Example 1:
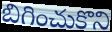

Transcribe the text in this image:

బిగించుకొని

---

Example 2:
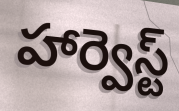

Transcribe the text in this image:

హార్వెస్ట్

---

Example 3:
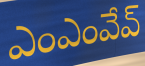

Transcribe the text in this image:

ఎంఎంవేవ్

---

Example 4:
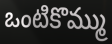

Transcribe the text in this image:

ఒంటికొమ్ము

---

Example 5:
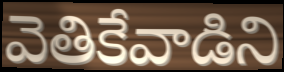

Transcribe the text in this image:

వెతికేవాడిని